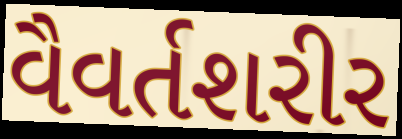
વૈવર્તશરીર